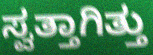
ಸ್ವತ್ತಾಗಿತ್ತು